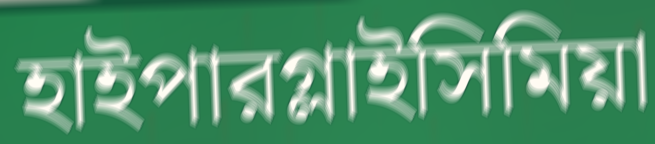
হাইপারগ্লাইসিমিয়া